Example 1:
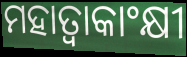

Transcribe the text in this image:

ମହାତ୍ୱାକାଂକ୍ଷୀ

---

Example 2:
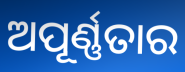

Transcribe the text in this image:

ଅପୂର୍ଣ୍ଣତାର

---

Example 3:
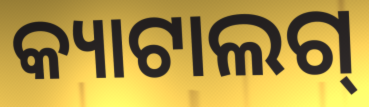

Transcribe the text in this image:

କ୍ୟାଟାଲଗ୍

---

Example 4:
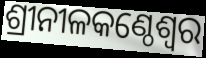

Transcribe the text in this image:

ଶ୍ରୀନୀଳକଣ୍ଠେଶ୍ଵର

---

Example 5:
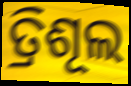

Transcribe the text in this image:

ତ୍ରିଶୂଲ